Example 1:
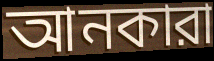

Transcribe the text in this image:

আনকারা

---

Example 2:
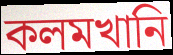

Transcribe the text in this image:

কলমখানি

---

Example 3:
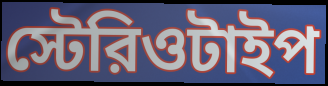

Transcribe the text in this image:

স্টেরিওটাইপ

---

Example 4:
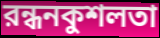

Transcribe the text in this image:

রন্ধনকুশলতা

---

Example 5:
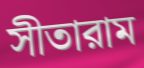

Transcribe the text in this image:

সীতারাম